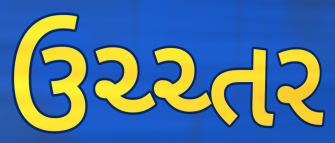
ઉચ્ચ્તર